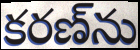
కరణ్‌ను